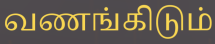
வணங்கிடும்